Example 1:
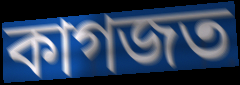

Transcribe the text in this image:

কাগজত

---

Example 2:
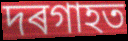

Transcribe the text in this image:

দৰগাহত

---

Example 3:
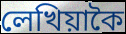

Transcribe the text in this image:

লেখিয়াকৈ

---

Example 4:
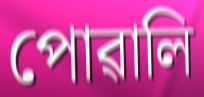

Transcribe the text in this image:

পোৱালি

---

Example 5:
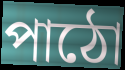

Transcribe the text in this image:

পাঠো